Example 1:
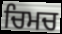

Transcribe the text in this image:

ਚਿਮਚ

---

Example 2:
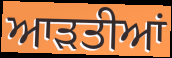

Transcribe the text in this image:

ਆੜਤੀਆਂ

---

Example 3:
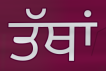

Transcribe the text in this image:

ਤੱਥਾਂ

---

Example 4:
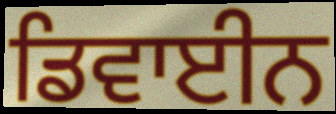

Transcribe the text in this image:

ਡਿਵਾਈਨ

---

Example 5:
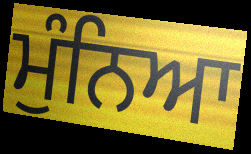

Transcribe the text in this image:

ਮੁੰਨਿਆ